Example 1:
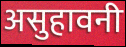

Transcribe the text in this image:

असुहावनी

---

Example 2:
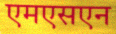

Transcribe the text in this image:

एमएसएन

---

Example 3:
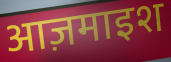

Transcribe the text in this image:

आज़माइश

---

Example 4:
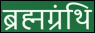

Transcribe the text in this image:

ब्रह्मग्रंथि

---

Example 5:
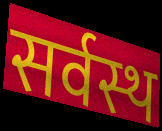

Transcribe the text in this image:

सर्वस्थ